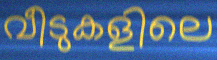
വീടുകളിലെ